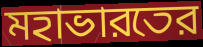
মহাভারতের